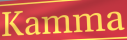
Kamma